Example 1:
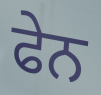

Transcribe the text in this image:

ਫੇਨ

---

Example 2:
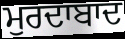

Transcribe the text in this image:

ਮੁਰਦਾਬਾਦ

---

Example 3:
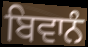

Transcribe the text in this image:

ਬਿਵਾਨੰ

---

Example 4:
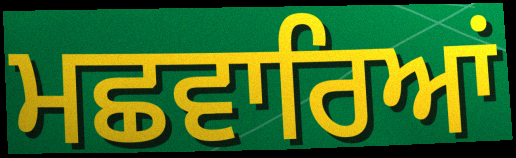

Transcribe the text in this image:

ਮਛਵਾਰਿਆਂ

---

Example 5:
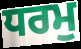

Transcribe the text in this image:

ਧਰਮੁ